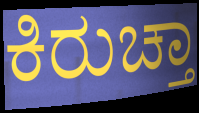
ಕಿರುಚ್ತಾ